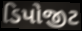
ડિપોજીટ